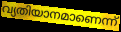
വ്യതിയാനമാണെന്ന്